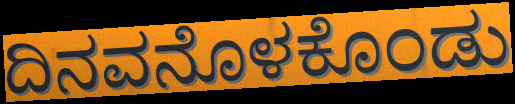
ದಿನವನೊಳಕೊಂಡು